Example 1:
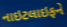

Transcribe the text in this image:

નાઇટલાઇફને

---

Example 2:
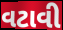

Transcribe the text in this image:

વટાવી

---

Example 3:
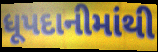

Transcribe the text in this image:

ધૂપદાનીમાંથી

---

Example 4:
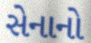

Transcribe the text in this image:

સેનાનો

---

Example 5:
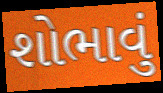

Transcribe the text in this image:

શોભાવું